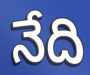
నేది